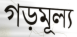
গড়মূল্য